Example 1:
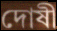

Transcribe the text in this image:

দোষী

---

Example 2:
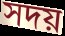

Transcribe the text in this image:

সদয়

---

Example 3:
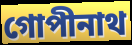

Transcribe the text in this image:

গোপীনাথ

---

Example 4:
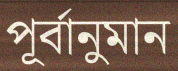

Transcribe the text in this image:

পূৰ্বানুমান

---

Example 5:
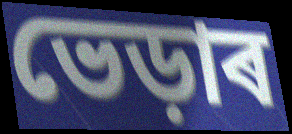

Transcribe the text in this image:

ভেড়াৰ